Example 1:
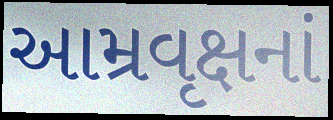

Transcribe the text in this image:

આમ્રવૃક્ષનાં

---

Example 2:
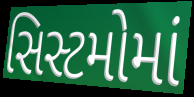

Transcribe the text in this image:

સિસ્ટમોમાં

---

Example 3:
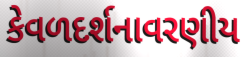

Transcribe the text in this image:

કેવળદર્શનાવરણીય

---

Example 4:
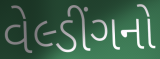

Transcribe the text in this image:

વેલ્ડીંગનો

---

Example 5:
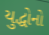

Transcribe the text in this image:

યુદ્ધોનો